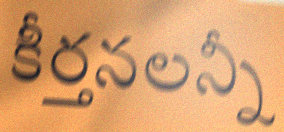
కీర్తనలన్నీ